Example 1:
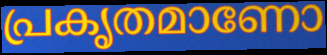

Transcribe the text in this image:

പ്രകൃതമാണോ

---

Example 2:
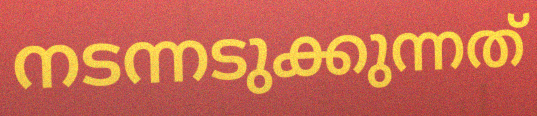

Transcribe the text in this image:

നടന്നടുക്കുന്നത്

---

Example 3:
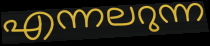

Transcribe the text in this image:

എന്നലറുന്ന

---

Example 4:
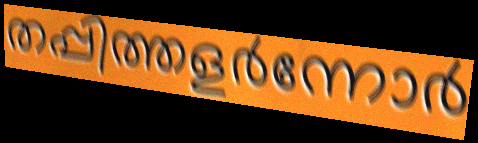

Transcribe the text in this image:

തപ്പിത്തളർന്നോർ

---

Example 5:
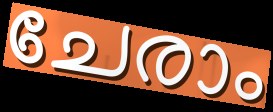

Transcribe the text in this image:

ചേരാം